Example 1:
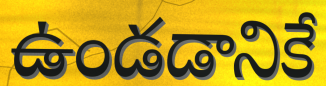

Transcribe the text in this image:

ఉండడానికే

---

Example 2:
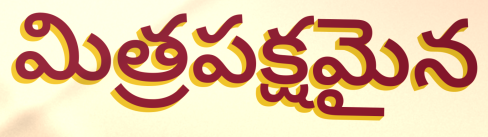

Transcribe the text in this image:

మిత్రపక్షమైన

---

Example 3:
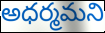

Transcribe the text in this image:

అధర్మమని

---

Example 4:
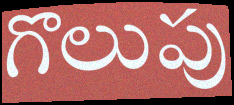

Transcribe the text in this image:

గొలుపు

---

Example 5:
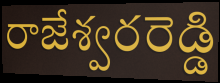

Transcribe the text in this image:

రాజేశ్వరరెడ్డి